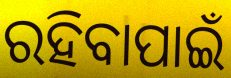
ରହିବାପାଇଁ